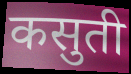
कसुती